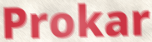
Prokar